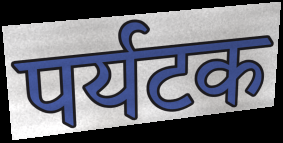
पर्यटक